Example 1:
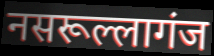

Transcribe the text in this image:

नसरूल्लागंज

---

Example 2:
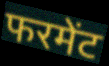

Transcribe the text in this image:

फरमेंट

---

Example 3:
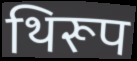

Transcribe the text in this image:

थिरूप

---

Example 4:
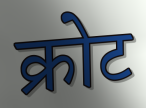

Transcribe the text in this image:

क्रोट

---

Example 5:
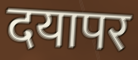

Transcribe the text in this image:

दयापर